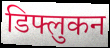
डिफ्लुकन